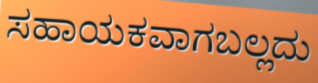
ಸಹಾಯಕವಾಗಬಲ್ಲದು